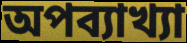
অপব্যাখ্যা